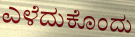
ಎಳೆದುಕೊಂದು